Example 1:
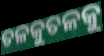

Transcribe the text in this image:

ତଳକୁତଳକୁ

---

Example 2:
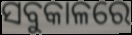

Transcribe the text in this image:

ସବୁକାଳରେ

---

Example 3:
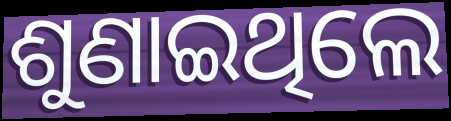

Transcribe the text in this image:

ଶୁଣାଇଥିଲେ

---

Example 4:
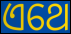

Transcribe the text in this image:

ଏଥେ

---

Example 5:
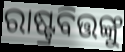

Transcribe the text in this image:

ରାଷ୍ଟ୍ରବିତ୍ତଙ୍କୁ